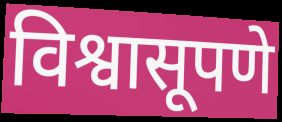
विश्वासूपणे